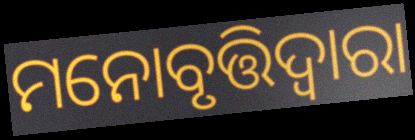
ମନୋବୃତ୍ତିଦ୍ଵାରା